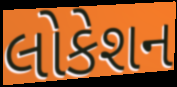
લોકેશન